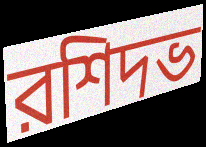
রশিদভ